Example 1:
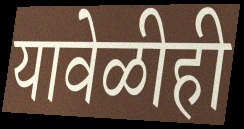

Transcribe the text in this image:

यावेळीही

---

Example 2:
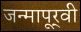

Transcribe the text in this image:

जन्मापूर्वी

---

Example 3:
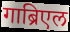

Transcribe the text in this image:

गाब्रिएल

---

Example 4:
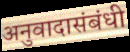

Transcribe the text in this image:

अनुवादासंबंधी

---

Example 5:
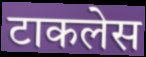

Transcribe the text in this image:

टाकलेस